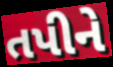
તપીને